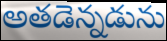
అతడెన్నడును